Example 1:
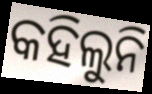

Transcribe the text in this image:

କହିଲୁନି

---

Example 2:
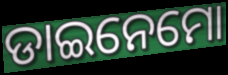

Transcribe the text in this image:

ଡାଇନେମୋ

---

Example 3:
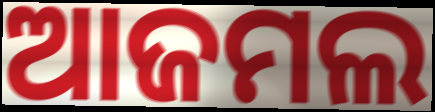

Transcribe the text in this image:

ଆଜମଲ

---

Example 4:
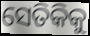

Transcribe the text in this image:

ସେତିକିକୁ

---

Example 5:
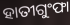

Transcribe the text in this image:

ହାତୀଗୁଂଫା